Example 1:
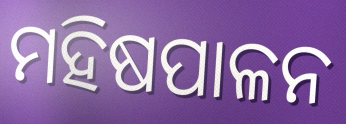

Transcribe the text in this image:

ମହିଷପାଳନ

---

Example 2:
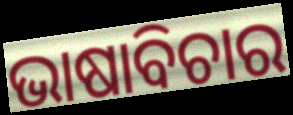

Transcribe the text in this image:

ଭାଷାବିଚାର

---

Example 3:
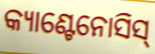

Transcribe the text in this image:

କ୍ୟାଣ୍ଟେନୋସିସ୍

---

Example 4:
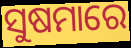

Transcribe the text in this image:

ସୁଷମାରେ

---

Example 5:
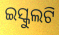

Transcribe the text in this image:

ଇସ୍କୁଲଟି